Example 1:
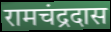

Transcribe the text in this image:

रामचंद्रदास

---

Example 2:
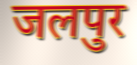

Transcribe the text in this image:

जलपुर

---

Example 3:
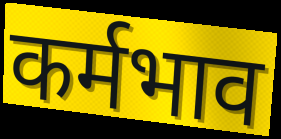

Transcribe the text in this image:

कर्मभाव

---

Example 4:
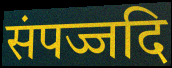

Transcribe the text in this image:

संपज्जदि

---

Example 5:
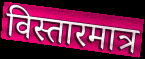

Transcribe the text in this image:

विस्तारमात्र